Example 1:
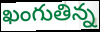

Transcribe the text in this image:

ఖంగుతిన్న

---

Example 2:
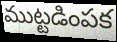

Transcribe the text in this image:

ముట్టడింపక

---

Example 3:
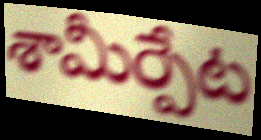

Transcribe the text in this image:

శామీర్పేట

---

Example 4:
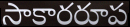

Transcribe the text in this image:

సాకారరూప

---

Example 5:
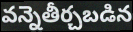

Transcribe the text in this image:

వన్నెతీర్చబడిన